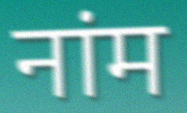
नांम